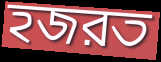
হজরত